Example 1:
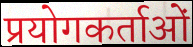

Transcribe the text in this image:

प्रयोगकर्ताओं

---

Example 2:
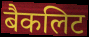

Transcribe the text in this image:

बैकलिट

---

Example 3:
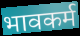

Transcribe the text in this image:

भावकर्म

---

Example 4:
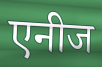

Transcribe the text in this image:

एनीज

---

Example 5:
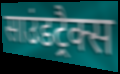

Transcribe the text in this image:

साउंडट्रैक्स